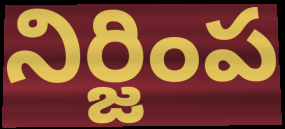
నిర్జింప